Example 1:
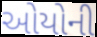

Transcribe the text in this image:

ઓયોની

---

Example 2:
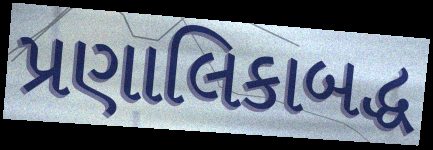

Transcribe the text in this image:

પ્રણાલિકાબદ્ધ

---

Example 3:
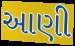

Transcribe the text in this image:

આણી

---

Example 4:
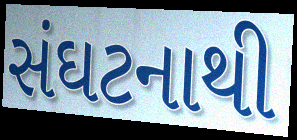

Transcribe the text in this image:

સંઘટનાથી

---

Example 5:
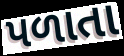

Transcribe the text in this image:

પળાતા